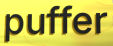
puffer